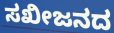
ಸಖೀಜನದ